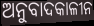
ଅନୁବାଦକାଳୀନ